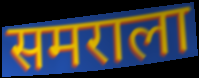
समराला